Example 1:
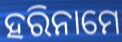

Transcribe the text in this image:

ହରିନାମେ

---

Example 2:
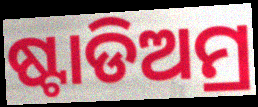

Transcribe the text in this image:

ଷ୍ଟାଡିଅମ୍ର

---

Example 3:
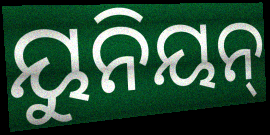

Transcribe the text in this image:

ୟୁନିୟନ୍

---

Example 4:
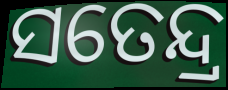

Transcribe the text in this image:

ସତେନ୍ଦ୍ର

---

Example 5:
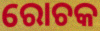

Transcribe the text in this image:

ରୋଚକ